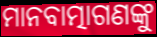
ମାନବାତ୍ମାଗଣଙ୍କୁ